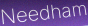
Needham